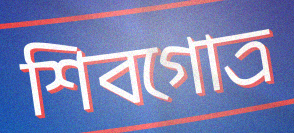
শিবগোত্র